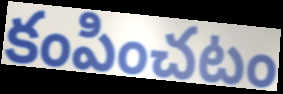
కంపించటం